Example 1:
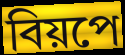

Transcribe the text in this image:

বিয়পে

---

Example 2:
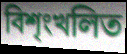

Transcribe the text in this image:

বিশৃংখলিত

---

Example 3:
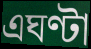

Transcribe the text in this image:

এঘণ্টা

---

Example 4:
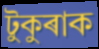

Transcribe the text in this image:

টুকুৰাক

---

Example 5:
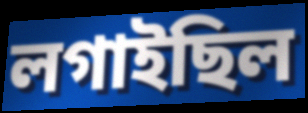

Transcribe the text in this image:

লগাইছিল